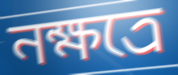
নক্ষত্রে